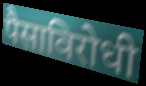
पैसाविरोधी